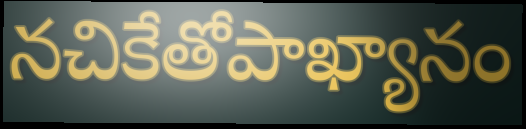
నచికేతోపాఖ్యానం